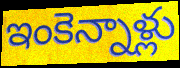
ఇంకెన్నాళ్లు